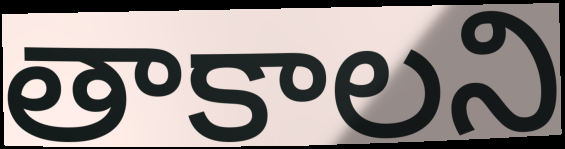
తాకాలని